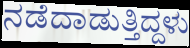
ನಡೆದಾಡುತ್ತಿದ್ದಳು